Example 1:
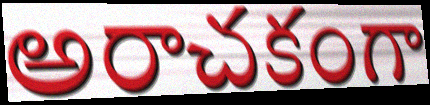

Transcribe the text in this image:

అరాచకంగా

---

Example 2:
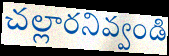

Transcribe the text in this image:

చల్లారనివ్వండి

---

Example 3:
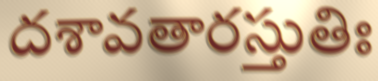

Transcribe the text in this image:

దశావతారస్తుతిః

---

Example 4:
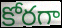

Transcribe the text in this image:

కోరగా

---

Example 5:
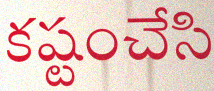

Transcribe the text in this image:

కష్టంచేసి